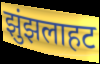
झुंझलाहट